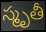
స్మృతీ